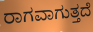
ರಾಗವಾಗುತ್ತದೆ